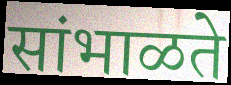
सांभाळते